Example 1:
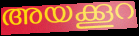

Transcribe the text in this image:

അയക്കൂറ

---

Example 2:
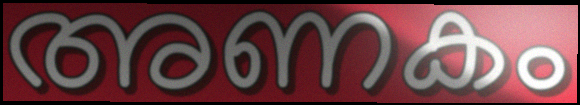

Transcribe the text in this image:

അണകം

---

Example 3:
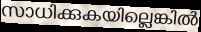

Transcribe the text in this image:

സാധിക്കുകയില്ലെങ്കിൽ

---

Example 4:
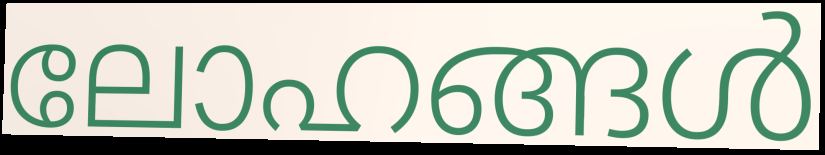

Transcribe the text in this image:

ലോഹങ്ങൾ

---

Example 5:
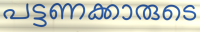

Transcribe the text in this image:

പട്ടണക്കാരുടെ